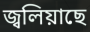
জ্বলিয়াছে